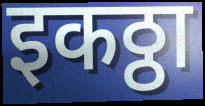
इकठ्ठा